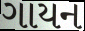
ગાયન